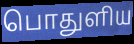
பொதுளிய